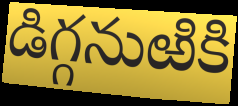
డిగ్గనుఱికి